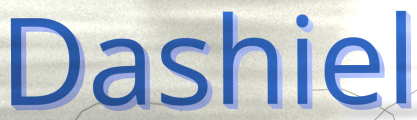
Dashiel